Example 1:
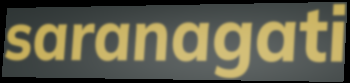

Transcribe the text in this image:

saranagati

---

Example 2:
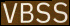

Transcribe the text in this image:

VBSS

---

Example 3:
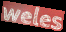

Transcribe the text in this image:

weles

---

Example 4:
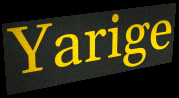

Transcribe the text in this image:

Yarige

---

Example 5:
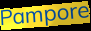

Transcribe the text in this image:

Pampore